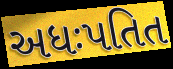
અધઃપતિત